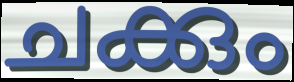
ചക്കും